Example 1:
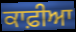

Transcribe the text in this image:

ਕਾਫ਼ੀਆ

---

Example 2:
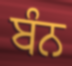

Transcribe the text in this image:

ਬੰਨ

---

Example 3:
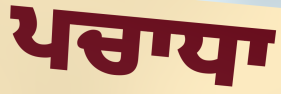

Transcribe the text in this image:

ਪਚਾਧਾ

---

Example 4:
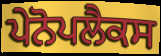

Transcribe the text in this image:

ਪੇਨੋਪਲੈਕਸ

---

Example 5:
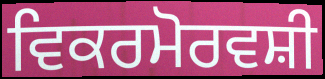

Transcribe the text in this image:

ਵਿਕਰਮੋਰਵਸ਼ੀ